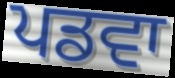
ਪਡਵਾ